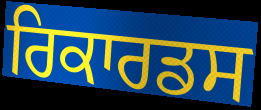
ਰਿਕਾਰਡਸ